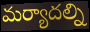
మర్యాదల్ని